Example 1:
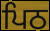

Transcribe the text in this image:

ਪਿਠ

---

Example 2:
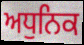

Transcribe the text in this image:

ਅਧੁਨਿਕ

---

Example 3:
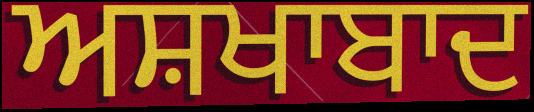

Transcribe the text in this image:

ਅਸ਼ਖਾਬਾਦ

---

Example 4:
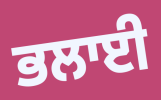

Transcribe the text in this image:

ਭਲਾਈ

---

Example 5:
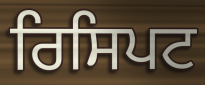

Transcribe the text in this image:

ਰਿਸਿਪਟ